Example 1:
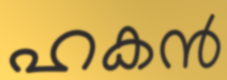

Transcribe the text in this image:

ഹകൻ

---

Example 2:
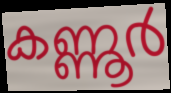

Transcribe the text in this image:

കണ്ണൂർ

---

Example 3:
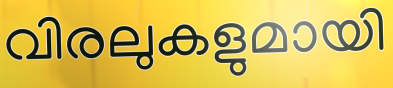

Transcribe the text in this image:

വിരലുകളുമായി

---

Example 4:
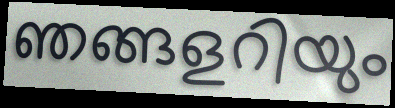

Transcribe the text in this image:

ഞങ്ങളറിയും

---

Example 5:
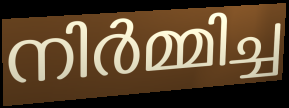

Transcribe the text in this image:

നിർമ്മിച്ച